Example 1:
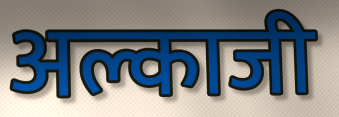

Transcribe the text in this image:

अल्काजी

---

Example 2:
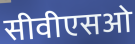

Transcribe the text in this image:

सीवीएसओ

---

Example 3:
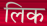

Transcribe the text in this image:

लिक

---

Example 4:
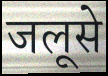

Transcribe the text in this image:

जलूसे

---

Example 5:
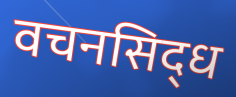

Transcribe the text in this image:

वचनसिद्ध